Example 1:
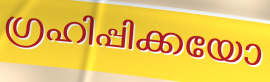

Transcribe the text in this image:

ഗ്രഹിപ്പിക്കയോ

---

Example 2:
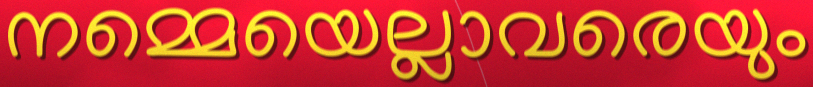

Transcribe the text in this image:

നമ്മെയെല്ലാവരെയും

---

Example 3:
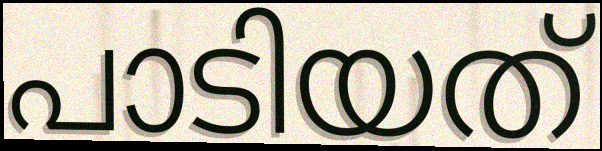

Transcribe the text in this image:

പാടിയത്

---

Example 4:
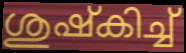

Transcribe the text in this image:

ശുഷ്കിച്ച്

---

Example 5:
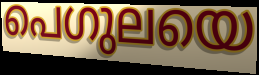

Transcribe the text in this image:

പെഗുലയെ